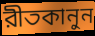
রীতকানুন